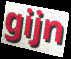
gijn